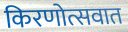
किरणोत्सवात